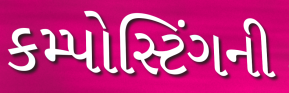
કમ્પોસ્ટિંગની